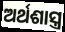
ଅର୍ଥଶାସ୍ତ୍ର